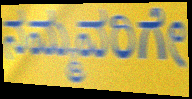
ನಮ್ಮವರಿಗೇ